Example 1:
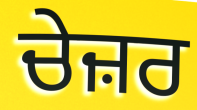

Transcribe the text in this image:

ਚੇਜ਼ਰ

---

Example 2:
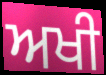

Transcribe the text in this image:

ਅਖੀ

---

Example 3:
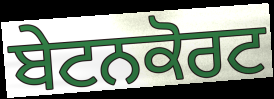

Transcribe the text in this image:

ਬੇਟਨਕੋਰਟ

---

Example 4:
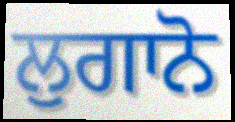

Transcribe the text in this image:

ਲੁਗਾਨੋ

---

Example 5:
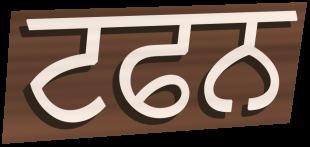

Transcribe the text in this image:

ਟਫਨ